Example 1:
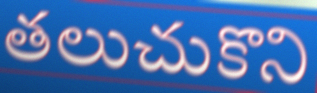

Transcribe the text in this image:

తలుచుకొని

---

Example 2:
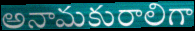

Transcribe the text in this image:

అనామకురాలిగా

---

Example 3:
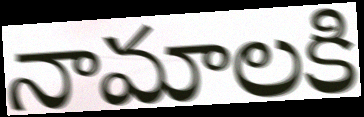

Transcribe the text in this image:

నామాలకి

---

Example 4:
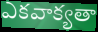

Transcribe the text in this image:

ఎకవాక్యతా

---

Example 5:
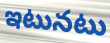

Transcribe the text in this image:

ఇటునటు